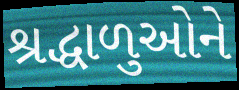
શ્રદ્ધાળુઓને